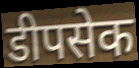
डीपसेक